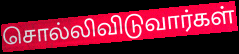
சொல்லிவிடுவார்கள்